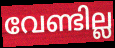
വേണ്ടില്ല